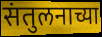
संतुलनाच्या